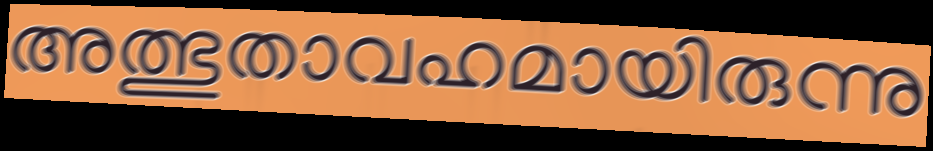
അത്ഭുതാവഹമായിരുന്നു